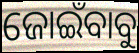
ଜୋଇଁବାବୁ